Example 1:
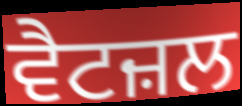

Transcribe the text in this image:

ਵੈਟਜ਼ਲ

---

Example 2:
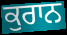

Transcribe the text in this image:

ਕੁਰਾਨ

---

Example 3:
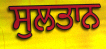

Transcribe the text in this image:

ਸੁਲਤਾਨ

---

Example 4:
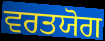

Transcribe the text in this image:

ਵਰਤਯੋਗ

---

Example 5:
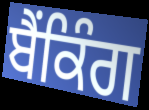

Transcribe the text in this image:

ਬੈਂਕਿੰਗ